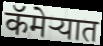
कॅमेर्‍यात